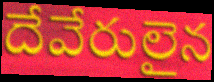
దేవేరులైన